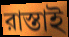
রাস্তাই